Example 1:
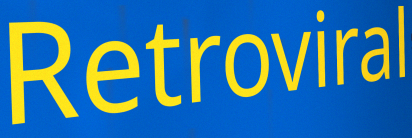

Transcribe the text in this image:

Retroviral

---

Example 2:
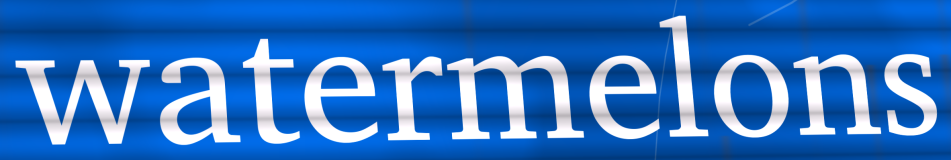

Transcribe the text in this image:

watermelons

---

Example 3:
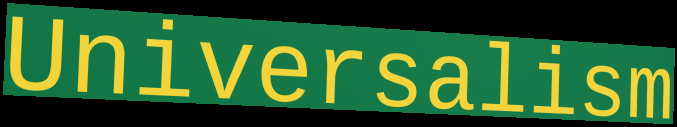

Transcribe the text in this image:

Universalism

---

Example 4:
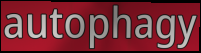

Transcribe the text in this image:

autophagy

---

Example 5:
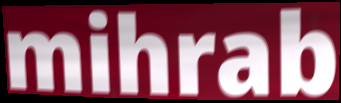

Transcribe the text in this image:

mihrab